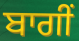
ਬਾਗੀਂ